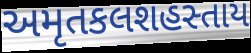
અમૃતકલશહસ્તાય